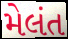
મેલંત